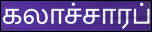
கலாச்சாரப்